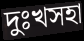
দুঃখসহা